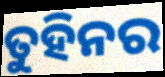
ତୁହିନର